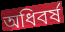
অধিবর্ষ